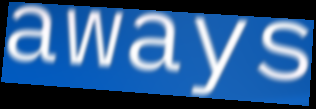
aways